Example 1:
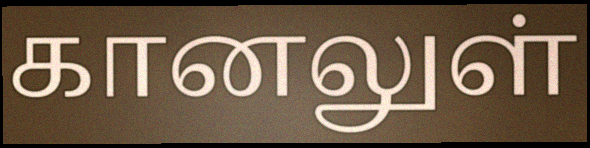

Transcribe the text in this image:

கானலுள்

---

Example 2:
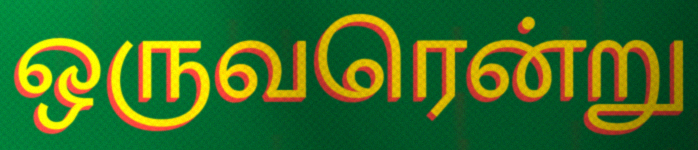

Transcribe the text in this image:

ஒருவரென்று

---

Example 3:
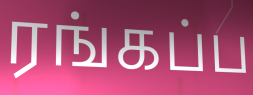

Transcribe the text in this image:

ரங்கப்ப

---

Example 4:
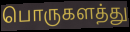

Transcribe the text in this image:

பொருகளத்து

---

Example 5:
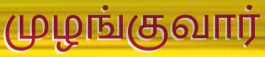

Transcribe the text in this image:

முழங்குவார்